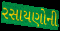
રસાયણોની